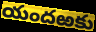
యందఱకు